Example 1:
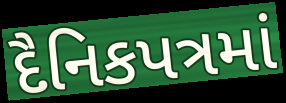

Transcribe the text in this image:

દૈનિકપત્રમાં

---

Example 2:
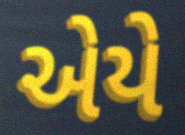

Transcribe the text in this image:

એયે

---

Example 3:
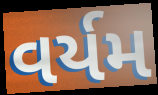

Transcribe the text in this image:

વર્યમ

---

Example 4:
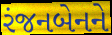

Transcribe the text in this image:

રંજનબેનને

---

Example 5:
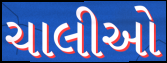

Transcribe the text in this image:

ચાલીઓ